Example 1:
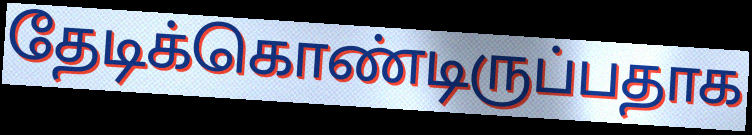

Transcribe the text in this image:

தேடிக்கொண்டிருப்பதாக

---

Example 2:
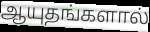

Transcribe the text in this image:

ஆயுதங்களால்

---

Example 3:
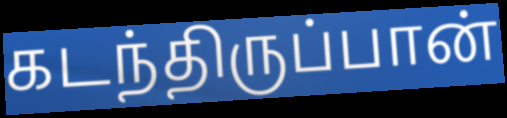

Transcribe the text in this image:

கடந்திருப்பான்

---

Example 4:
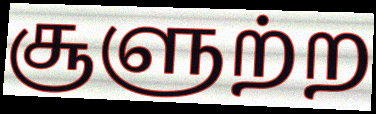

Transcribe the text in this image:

சூளுற்ற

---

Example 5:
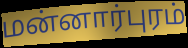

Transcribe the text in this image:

மன்னார்புரம்